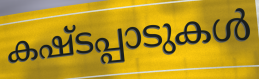
കഷ്ടപ്പാടുകൾ